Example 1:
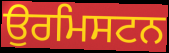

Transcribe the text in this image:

ਉਰਮਿਸਟਨ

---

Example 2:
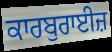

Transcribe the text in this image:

ਕਾਰਬੁਰਾਈਜ਼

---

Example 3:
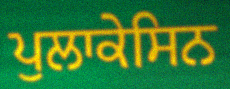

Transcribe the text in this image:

ਪੁਲਾਕੇਸਿਨ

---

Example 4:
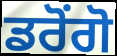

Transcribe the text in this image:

ਡਰੋਂਗੋ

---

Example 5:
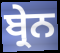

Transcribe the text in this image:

ਬ੍ਰੇਨ